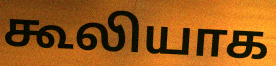
கூலியாக